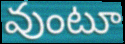
వుంటూ